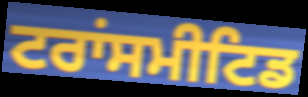
ਟਰਾਂਸਮੀਟਿਡ